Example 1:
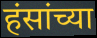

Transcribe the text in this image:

हंसांच्या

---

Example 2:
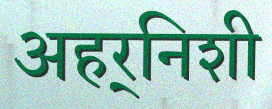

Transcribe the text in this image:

अहर्निशी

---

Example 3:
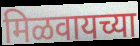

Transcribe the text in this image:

मिळवायच्या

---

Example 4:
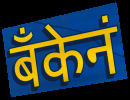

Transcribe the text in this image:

बॅंकेनं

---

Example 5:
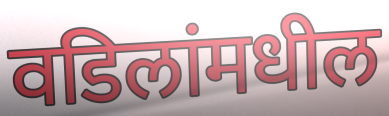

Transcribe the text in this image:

वडिलांमधील